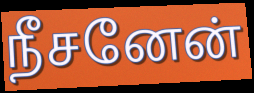
நீசனேன்